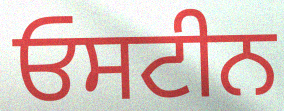
ਓਸਟੀਨ